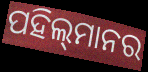
ପହିଲ୍‌ମାନର